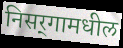
निसर्गामधील